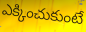
ఎక్కించుకుంటే